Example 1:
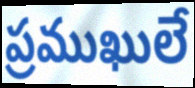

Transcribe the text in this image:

ప్రముఖులే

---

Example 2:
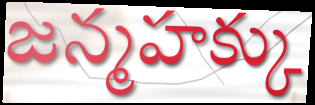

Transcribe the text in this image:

జన్మహక్కు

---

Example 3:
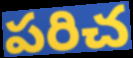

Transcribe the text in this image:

పరిచ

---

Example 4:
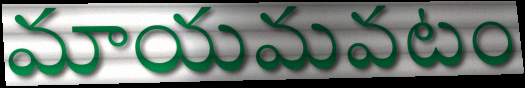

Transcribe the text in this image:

మాయమవటం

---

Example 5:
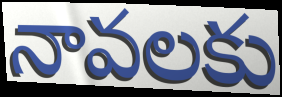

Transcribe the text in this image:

నావలకు